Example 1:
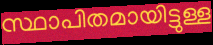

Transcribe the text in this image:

സ്ഥാപിതമായിട്ടുള്ള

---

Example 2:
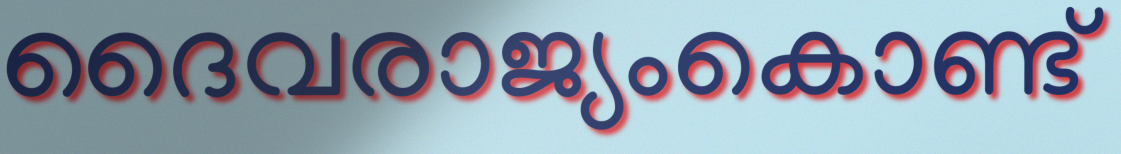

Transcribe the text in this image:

ദൈവരാജ്യംകൊണ്ട്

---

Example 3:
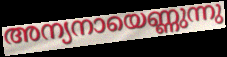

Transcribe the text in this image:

അന്യനായെണ്ണുന്നു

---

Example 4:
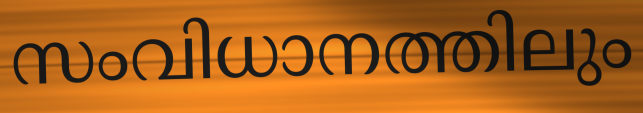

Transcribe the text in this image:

സംവിധാനത്തിലും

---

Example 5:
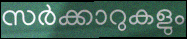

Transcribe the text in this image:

സർക്കാറുകളും